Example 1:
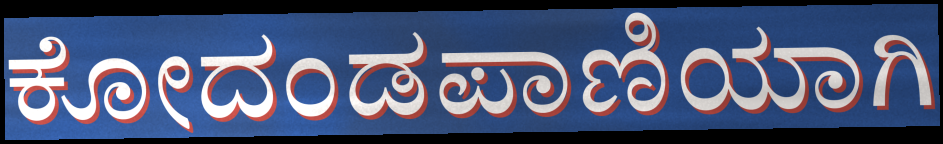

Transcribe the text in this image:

ಕೋದಂಡಪಾಣಿಯಾಗಿ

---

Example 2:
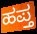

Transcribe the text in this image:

ಹಪ್ತ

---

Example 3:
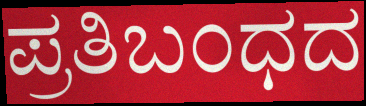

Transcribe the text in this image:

ಪ್ರತಿಬಂಧದ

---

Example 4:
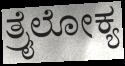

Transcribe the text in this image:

ತ್ರೈಲೋಕ್ಯ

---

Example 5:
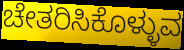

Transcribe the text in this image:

ಚೇತರಿಸಿಕೊಳ್ಳುವ